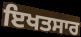
ਇਖਤਸਾਰ